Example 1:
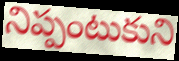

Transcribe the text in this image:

నిప్పంటుకుని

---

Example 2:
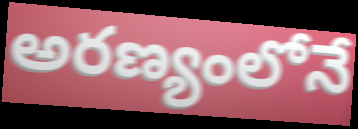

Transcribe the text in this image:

అరణ్యంలోనే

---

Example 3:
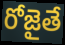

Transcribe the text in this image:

రోజైతే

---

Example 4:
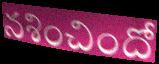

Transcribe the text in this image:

నశించిందో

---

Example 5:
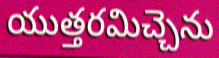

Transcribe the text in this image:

యుత్తరమిచ్చెను